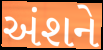
અંશને